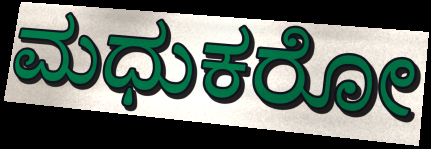
ಮಧುಕರೋ